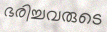
ഭരിച്ചവരുടെ